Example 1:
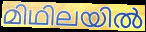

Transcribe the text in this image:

മിഥിലയിൽ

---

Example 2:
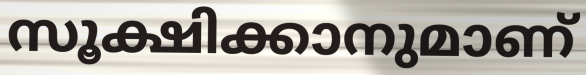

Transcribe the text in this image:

സൂക്ഷിക്കാനുമാണ്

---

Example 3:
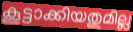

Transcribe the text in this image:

കൂട്ടാക്കിയതുമില്ല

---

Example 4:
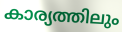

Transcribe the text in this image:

കാര്യത്തിലും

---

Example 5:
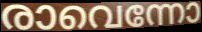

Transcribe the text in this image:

രാവെന്നോ